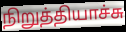
நிறுத்தியாச்சு